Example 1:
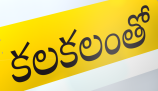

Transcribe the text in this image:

కలకలంతో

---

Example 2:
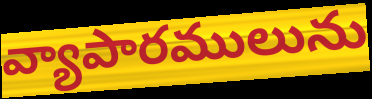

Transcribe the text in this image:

వ్యాపారములును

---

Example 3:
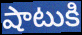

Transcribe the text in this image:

షాటుకి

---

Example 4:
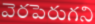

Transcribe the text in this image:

వెరపెరుగని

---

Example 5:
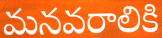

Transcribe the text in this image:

మనవరాలికి